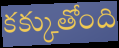
కక్కుతోంది